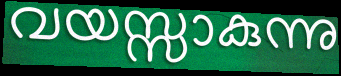
വയസ്സാകുന്നു